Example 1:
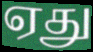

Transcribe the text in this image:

ஏது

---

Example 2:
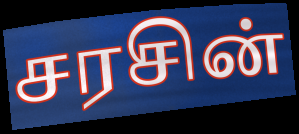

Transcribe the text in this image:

சரசின்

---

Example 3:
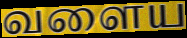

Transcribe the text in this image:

வளைய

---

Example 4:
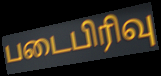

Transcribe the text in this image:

படைபிரிவு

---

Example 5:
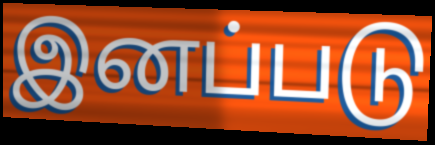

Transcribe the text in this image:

இனப்படு